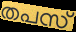
തപസ്